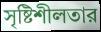
সৃষ্টিশীলতার